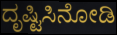
ದೃಷ್ಟಿಸಿನೋಡಿ